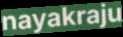
nayakraju